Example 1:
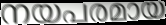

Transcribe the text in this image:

നയപരമായ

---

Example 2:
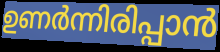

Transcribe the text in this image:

ഉണർന്നിരിപ്പാൻ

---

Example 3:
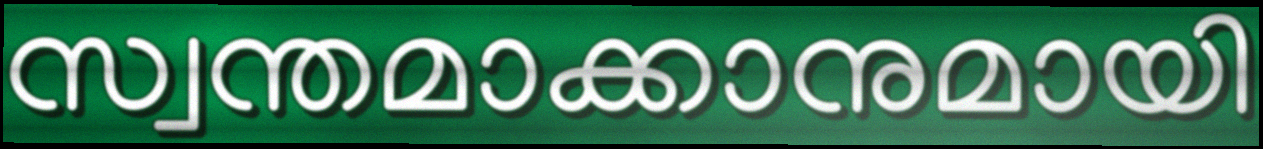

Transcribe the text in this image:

സ്വന്തമാക്കാനുമായി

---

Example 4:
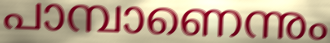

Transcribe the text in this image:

പാമ്പാണെന്നും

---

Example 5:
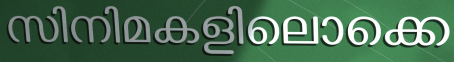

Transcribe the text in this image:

സിനിമകളിലൊക്കെ